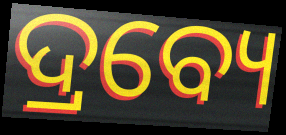
ଦ୍ରବ୍ୟେ